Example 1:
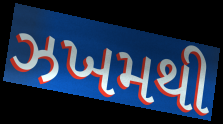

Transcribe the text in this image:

ઝખમથી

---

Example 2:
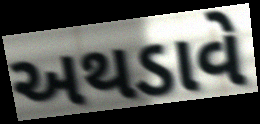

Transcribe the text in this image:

અથડાવે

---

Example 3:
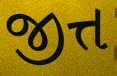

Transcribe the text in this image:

જીત્ત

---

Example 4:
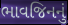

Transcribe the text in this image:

ભાવજિનનું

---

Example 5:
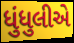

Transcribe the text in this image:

ધુંધુલીએ